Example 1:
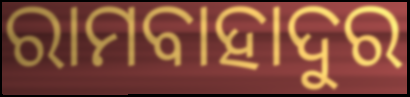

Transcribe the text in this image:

ରାମବାହାଦୁର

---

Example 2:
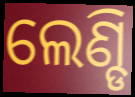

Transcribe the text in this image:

ଲେଣ୍ଡି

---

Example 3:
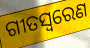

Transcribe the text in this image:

ଗୀତସ୍ବରେଣ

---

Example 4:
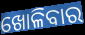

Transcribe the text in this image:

ଖୋଳିବାର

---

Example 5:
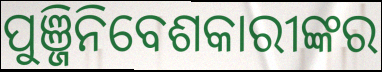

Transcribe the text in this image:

ପୁଞ୍ଜିନିବେଶକାରୀଙ୍କର